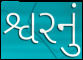
શ્વરનું